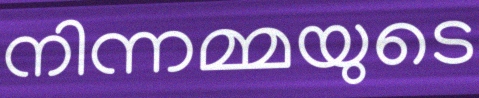
നിന്നമ്മയുടെ